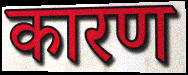
कारण